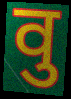
वु